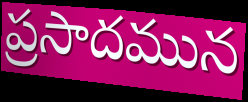
ప్రసాదమున